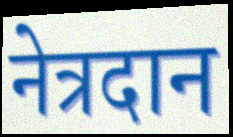
नेत्रदान